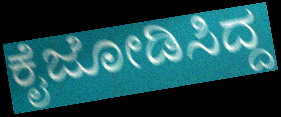
ಕೈಜೋಡಿಸಿದ್ದ